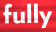
fully